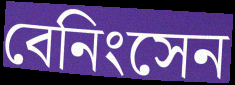
বেনিংসেন